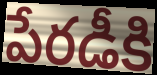
పేరడీకి